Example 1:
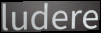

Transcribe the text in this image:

ludere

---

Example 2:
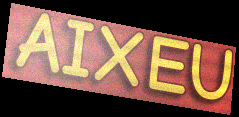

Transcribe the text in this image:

AIXEU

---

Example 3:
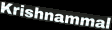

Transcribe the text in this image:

Krishnammal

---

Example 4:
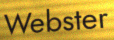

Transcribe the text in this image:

Webster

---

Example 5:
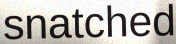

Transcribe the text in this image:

snatched